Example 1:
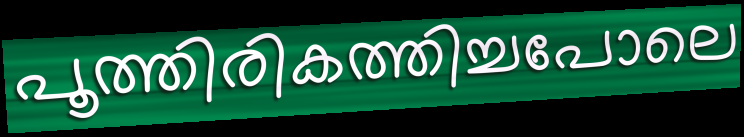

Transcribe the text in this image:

പൂത്തിരികത്തിച്ചപോലെ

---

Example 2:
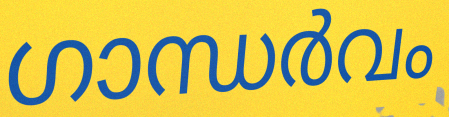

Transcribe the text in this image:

ഗാന്ധർവം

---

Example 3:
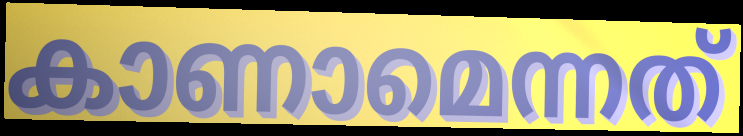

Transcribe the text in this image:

കാണാമെന്നത്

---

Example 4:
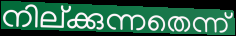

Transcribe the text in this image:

നില്ക്കുന്നതെന്ന്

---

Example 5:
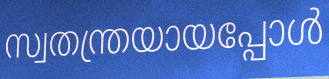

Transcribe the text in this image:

സ്വതന്ത്രയായപ്പോൾ